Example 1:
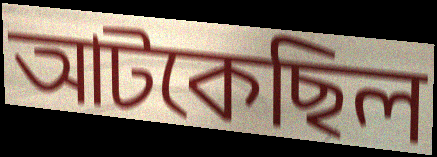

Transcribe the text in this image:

আটকেছিল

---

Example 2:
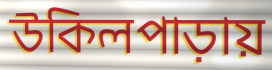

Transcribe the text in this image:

উকিলপাড়ায়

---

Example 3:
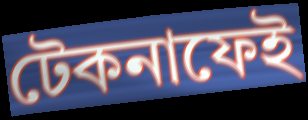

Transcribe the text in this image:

টেকনাফেই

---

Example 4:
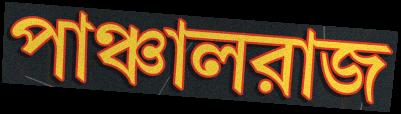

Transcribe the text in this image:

পাঞ্চালরাজ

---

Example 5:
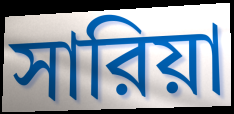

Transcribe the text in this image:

সারিয়া